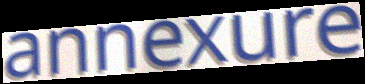
annexure